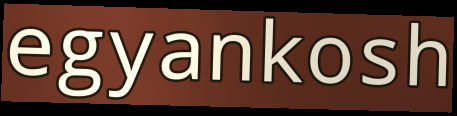
egyankosh